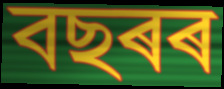
বছৰৰ